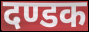
दण्डक